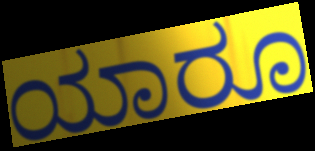
ಯಾರೂ